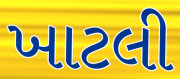
ખાટલી